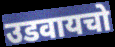
उडवायचो